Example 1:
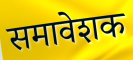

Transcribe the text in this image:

समावेशक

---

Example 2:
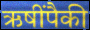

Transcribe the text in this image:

ऋषींपैकी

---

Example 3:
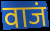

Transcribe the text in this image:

वाजं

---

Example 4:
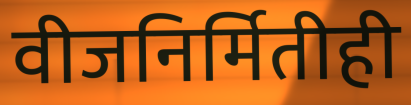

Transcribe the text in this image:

वीजनिर्मितीही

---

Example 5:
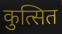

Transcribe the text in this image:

कुत्सित